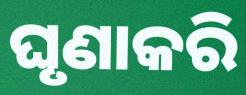
ଘୃଣାକରି